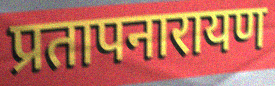
प्रतापनारायण